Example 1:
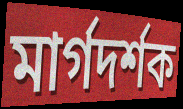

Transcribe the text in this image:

মার্গদর্শক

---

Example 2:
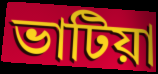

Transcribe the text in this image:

ভাটিয়া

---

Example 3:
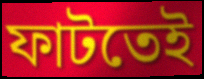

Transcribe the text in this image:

ফাটতেই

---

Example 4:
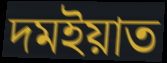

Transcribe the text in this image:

দমইয়াত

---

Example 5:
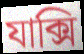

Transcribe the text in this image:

যাক্সি